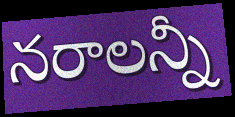
నరాలన్నీ